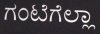
ಗಂಟೆಗೆಲ್ಲಾ